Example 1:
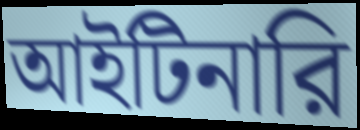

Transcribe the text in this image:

আইটিনারি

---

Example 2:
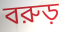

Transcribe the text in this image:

বরুড়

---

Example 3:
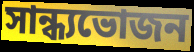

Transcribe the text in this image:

সান্ধ্যভোজন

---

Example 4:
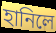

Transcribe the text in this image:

হানিলে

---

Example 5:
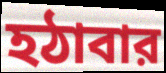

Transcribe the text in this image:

হঠাবার